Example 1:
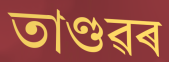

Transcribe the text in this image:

তাণ্ডৱৰ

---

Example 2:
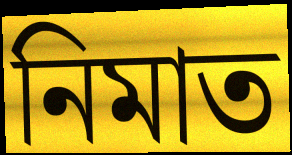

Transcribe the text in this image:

নিমাত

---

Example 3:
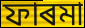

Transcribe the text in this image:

ফাৰমা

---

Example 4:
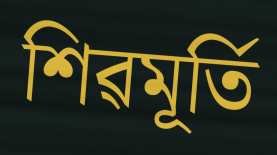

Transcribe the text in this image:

শিৱমূৰ্তি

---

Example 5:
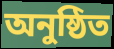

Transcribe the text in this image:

অনুষ্ঠিত